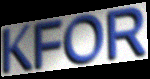
KFOR